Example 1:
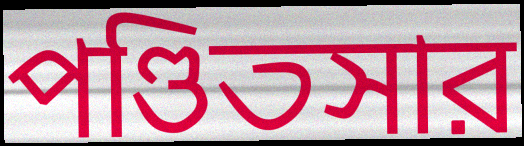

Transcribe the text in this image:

পণ্ডিতসার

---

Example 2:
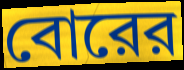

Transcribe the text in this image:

বোরের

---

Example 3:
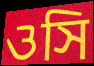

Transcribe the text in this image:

ওসি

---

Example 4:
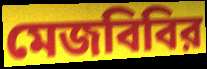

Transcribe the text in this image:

মেজবিবির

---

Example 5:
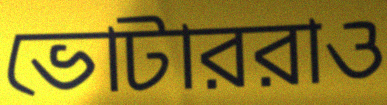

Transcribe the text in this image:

ভোটাররাও